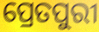
ପ୍ରେତପୁରୀ